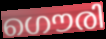
ഗൌരി